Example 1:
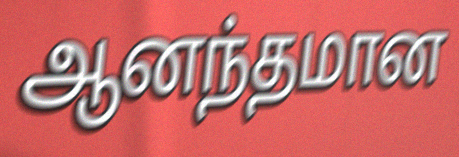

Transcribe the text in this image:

ஆனந்தமான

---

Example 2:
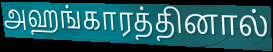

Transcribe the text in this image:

அஹங்காரத்தினால்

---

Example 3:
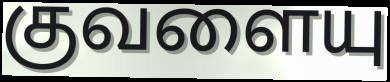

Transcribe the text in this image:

குவளையு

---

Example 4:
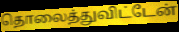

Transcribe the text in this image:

தொலைத்துவிட்டேன்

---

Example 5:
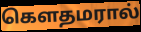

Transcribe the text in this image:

கௌதமரால்